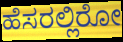
ಹೆಸರಲ್ಲಿರೋ